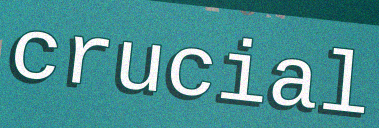
crucial